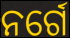
ନର୍ଗେ